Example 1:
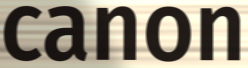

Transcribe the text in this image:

canon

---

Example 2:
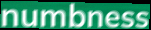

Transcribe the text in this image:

numbness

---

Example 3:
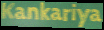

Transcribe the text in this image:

Kankariya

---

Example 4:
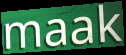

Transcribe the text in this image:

maak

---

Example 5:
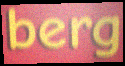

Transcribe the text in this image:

berg